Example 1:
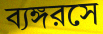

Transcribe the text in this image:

ব্যঙ্গরসে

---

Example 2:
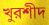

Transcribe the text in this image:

খুরশীদ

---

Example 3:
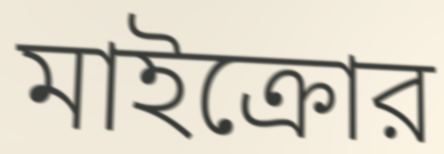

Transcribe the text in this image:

মাইক্রোর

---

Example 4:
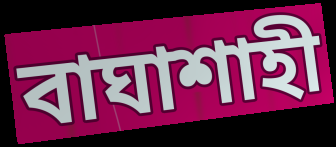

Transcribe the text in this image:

বাঘাশাহী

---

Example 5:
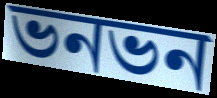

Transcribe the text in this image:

ভনভন